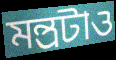
মন্ত্রটাও